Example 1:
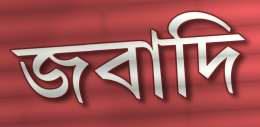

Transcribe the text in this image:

জবাদি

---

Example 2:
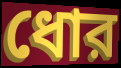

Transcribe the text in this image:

ধোর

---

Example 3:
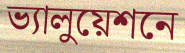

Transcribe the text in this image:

ভ্যালুয়েশনে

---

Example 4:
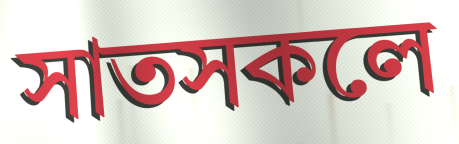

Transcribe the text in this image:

সাতসকলে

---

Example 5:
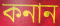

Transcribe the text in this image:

কনান